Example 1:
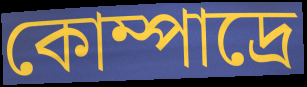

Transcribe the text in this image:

কোম্পাদ্রে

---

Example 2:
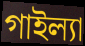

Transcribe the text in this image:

গাইল্যা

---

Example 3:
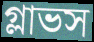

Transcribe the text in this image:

গ্লাভস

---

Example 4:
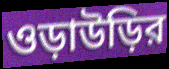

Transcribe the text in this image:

ওড়াউড়ির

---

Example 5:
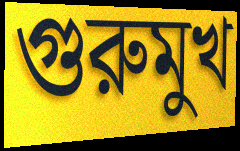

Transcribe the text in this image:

গুরুমুখ